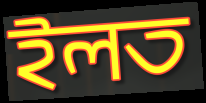
ইলত